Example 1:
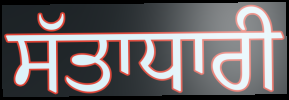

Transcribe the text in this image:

ਸੱਤਾਧਾਰੀ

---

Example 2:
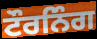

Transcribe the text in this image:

ਟੌਰਨਿੰਗ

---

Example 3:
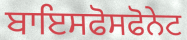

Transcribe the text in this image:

ਬਾਇਸਫੋਸਫੋਨੇਟ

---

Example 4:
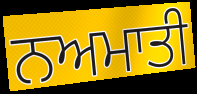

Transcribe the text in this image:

ਨਅਮਾਤੀ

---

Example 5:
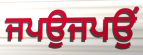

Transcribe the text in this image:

ਜਪਉਜਪਉਂ